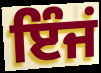
ਇੰਜਂ